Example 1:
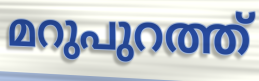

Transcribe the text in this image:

മറുപുറത്ത്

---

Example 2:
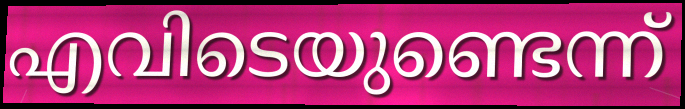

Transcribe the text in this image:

എവിടെയുണ്ടെന്ന്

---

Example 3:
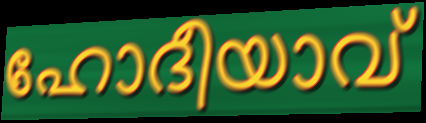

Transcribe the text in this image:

ഹോദീയാവ്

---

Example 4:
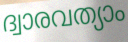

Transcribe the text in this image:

ദ്വാരവത്യാം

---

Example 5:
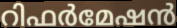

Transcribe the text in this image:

റിഫർമേഷൻ